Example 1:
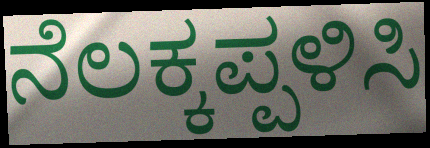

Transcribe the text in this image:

ನೆಲಕ್ಕಪ್ಪಳಿಸಿ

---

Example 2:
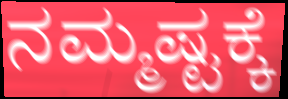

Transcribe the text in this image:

ನಮ್ಮಷ್ಟಕ್ಕೆ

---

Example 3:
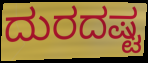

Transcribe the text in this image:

ದುರದಷ್ಟ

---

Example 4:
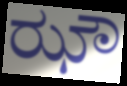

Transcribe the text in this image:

ಝೌ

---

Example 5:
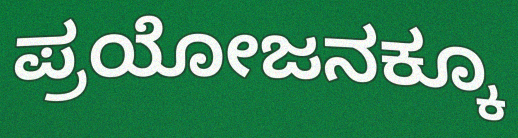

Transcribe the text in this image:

ಪ್ರಯೋಜನಕ್ಕೂ